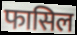
फासिल